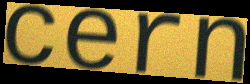
cern